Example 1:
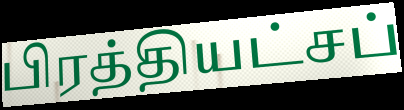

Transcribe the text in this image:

பிரத்தியட்சப்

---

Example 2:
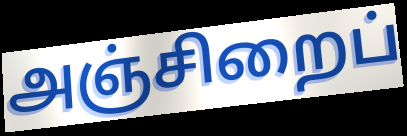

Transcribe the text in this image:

அஞ்சிறைப்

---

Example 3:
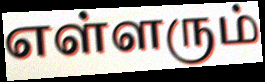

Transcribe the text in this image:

எள்ளரும்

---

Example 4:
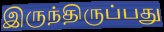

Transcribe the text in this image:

இருந்திருப்பது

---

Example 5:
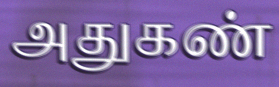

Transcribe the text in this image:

அதுகண்